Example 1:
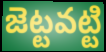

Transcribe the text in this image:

జెట్టవట్టి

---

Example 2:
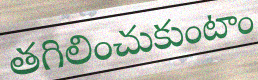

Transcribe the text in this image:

తగిలించుకుంటాం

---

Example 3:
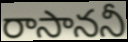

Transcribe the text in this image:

రాసాననీ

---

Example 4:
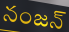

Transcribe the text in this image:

నంజన్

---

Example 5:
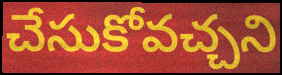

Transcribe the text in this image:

చేసుకోవచ్చని